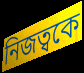
নিজত্বকে